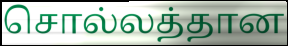
சொல்லத்தான